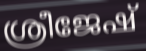
ശ്രീജേഷ്